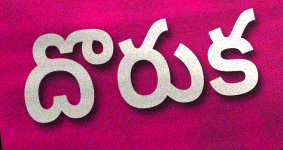
దొరుక